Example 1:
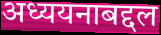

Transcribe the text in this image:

अध्ययनाबद्दल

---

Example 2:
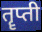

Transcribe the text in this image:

तॄप्ती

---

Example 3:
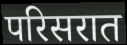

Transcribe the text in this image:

परिसरात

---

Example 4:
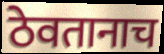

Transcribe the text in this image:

ठेवतानाच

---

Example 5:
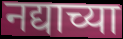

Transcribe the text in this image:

नद्याच्या